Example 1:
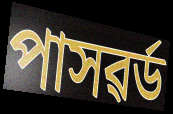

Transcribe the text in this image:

পাসৱৰ্ড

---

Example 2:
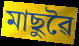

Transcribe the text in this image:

মাছুৱৈ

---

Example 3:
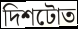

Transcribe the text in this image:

দিশটোত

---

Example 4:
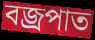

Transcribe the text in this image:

বজ্ৰপাত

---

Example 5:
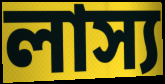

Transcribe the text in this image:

লাস্য